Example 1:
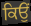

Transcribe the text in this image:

ਕਿਉੰ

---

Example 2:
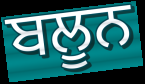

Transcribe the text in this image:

ਬਲੂਨ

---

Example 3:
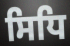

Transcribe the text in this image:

ਸਿਧਿ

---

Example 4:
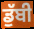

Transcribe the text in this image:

ਡੁੱਬੀ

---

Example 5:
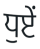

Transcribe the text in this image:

ਧੁਏਂ